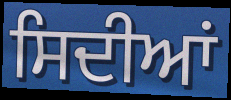
ਸਿਦੀਆਂ